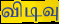
விடிவு